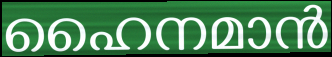
ഹൈനമാൻ